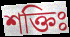
শক্তিঃ